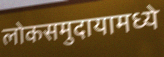
लोकसमुदायामध्ये